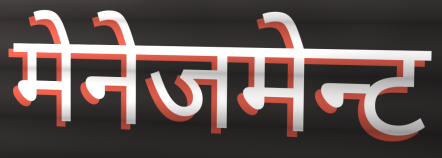
मेनेजमेन्ट